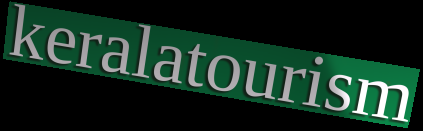
keralatourism